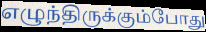
எழுந்திருக்கும்போது